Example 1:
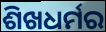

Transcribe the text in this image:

ଶିଖଧର୍ମର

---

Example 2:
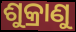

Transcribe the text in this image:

ଶୁକ୍ରାଣୁ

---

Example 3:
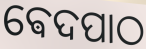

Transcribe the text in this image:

ଵେଦପାଠ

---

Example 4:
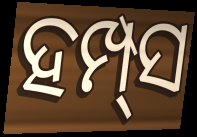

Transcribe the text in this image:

ହମ୍ପ୍‌ସ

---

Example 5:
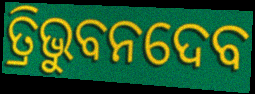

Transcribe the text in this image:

ତ୍ରିଭୁବନଦେବ